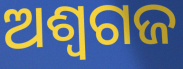
ଅଶ୍ୱଗଜ